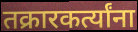
तक्रारकर्त्यांना